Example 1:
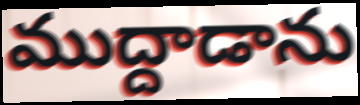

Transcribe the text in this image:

ముద్దాడాను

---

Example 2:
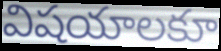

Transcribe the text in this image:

విషయాలకూ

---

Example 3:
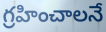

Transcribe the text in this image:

గ్రహించాలనే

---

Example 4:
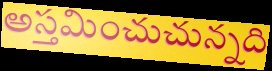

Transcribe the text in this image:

అస్తమించుచున్నది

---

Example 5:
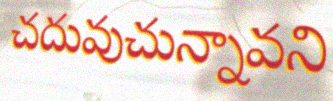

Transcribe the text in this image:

చదువుచున్నావని